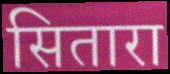
सितारा